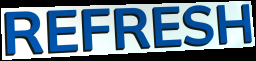
REFRESH